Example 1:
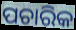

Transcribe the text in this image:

ପଚାରିକ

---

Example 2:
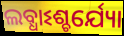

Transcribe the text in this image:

ଲବ୍ଧାଽଶ୍ଚର୍ଯ୍ୟୋ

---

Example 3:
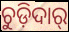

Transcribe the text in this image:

ଚୁଡ଼ିଦାର୍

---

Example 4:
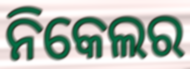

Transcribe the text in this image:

ନିକେଲର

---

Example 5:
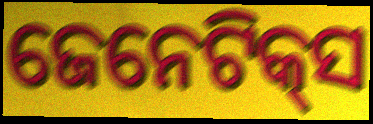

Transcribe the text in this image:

ଜେନେଟିକ୍‌ସ